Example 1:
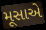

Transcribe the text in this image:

મૂસાએ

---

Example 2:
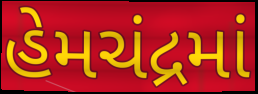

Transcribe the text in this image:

હેમચંદ્રમાં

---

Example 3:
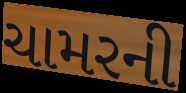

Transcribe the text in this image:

ચામરની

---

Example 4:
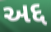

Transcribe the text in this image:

અદ્દ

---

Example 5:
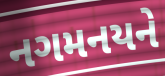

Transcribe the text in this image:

નગમનયને